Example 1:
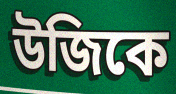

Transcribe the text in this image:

উজিকে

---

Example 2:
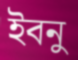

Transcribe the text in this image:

ইবনু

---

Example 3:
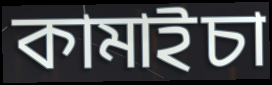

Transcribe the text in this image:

কামাইচা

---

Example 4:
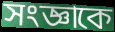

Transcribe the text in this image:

সংজ্ঞাকে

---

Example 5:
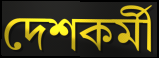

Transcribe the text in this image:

দেশকর্মী